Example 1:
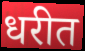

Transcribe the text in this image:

धरीत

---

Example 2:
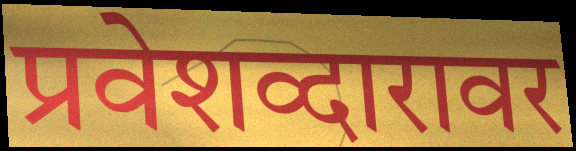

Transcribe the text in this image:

प्रवेशव्दारावर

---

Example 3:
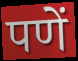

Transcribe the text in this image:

पणें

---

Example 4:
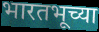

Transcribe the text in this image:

भारतभूच्या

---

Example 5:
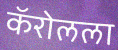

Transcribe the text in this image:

कॅरोलला